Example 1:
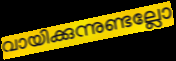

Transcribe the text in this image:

വായിക്കുന്നുണ്ടല്ലോ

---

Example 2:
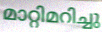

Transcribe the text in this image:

മാറ്റിമറിച്ചു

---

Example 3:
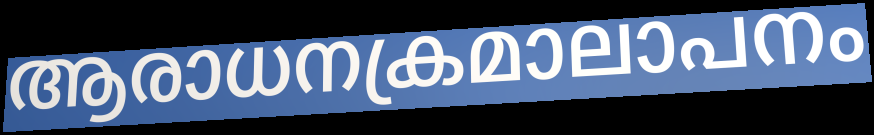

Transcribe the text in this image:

ആരാധനക്രമാലാപനം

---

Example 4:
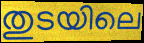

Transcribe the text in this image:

തുടയിലെ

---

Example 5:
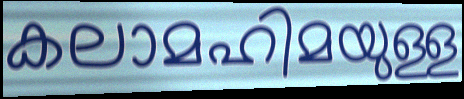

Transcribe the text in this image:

കലാമഹിമയുള്ള